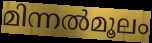
മിന്നൽമൂലം